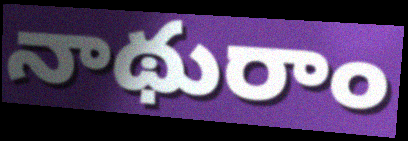
నాథురాం